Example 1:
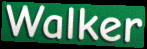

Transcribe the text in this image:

Walker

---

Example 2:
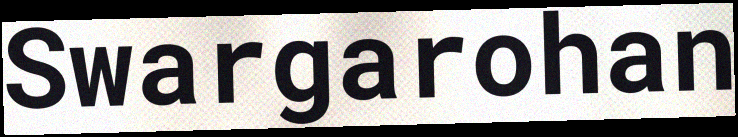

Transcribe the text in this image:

Swargarohan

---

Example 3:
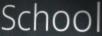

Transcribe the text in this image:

School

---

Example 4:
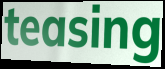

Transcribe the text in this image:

teasing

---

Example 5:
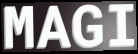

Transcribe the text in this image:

MAGI